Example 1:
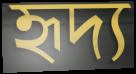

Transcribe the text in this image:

হৃদ্য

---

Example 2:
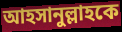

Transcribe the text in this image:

আহসানুল্লাহকে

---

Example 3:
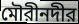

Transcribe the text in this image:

মৌরীনদীর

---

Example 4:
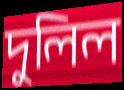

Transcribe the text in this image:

দুলিল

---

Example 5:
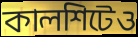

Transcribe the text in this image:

কালশিটেও